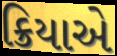
ક્રિયાએ